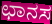
ಛಾನಸ